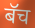
बॅच